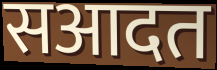
सआदत